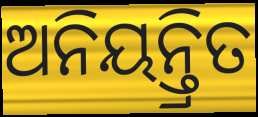
ଅନିୟନ୍ତ୍ରିତ